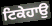
ਟਿਕੇਹਾਉ